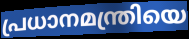
പ്രധാനമന്ത്രിയെ